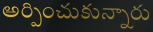
అర్పించుకున్నారు